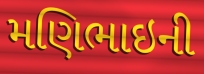
મણિભાઇની